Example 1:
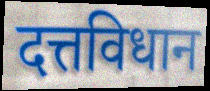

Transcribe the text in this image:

दत्तविधान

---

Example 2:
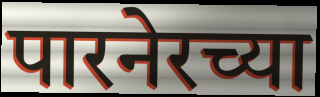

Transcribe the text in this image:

पारनेरच्या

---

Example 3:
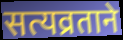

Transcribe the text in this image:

सत्यव्रताने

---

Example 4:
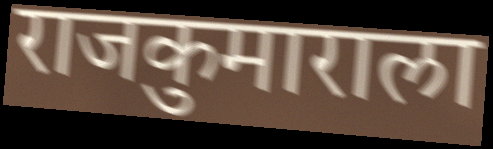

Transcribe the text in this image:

राजकुमाराला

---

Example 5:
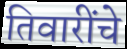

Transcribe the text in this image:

तिवारींचे